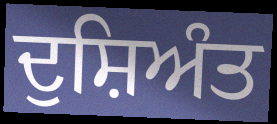
ਦੁਸ਼ਿਅੰਤ